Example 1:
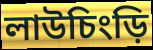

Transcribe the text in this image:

লাউচিংড়ি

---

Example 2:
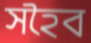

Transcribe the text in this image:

সহৈব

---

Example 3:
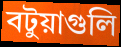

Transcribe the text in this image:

বটুয়াগুলি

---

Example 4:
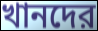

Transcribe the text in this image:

খানদের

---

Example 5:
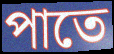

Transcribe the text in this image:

পাতে